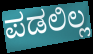
ಪಡಲಿಲ್ಲ